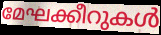
മേഘക്കീറുകൾ